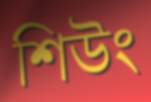
শিউং